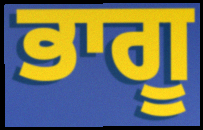
ਭਾਗੂ